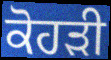
ਕੋਹੜੀ